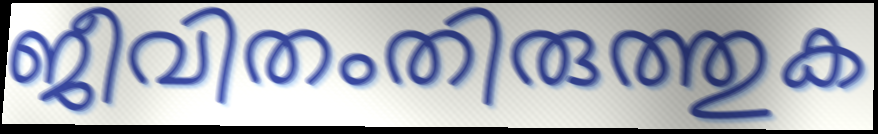
ജീവിതംതിരുത്തുക